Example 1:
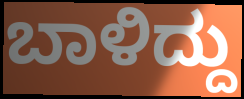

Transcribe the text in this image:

ಬಾಳಿದ್ದು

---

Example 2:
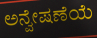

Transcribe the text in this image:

ಅನ್ವೇಷಣೆಯೆ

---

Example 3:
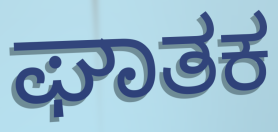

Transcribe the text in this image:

ಘಾತಕ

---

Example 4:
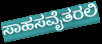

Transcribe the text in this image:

ಸಾಹಸವೈತರಲಿ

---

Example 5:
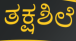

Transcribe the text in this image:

ತಕ್ಷಶಿಲೆ